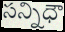
సన్నిధౌ